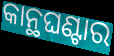
କାନ୍ଥଘଣ୍ଟାର